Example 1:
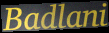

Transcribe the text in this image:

Badlani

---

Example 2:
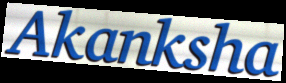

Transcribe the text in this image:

Akanksha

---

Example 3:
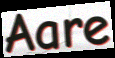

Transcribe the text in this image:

Aare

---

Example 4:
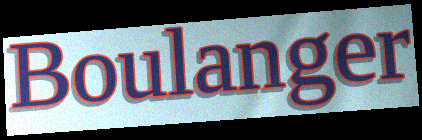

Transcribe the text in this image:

Boulanger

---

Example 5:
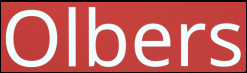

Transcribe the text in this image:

Olbers